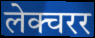
लेक्‍चरर